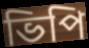
ভিপি